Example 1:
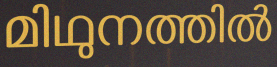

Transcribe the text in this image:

മിഥുനത്തിൽ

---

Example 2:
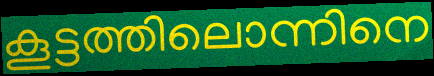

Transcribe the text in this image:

കൂട്ടത്തിലൊന്നിനെ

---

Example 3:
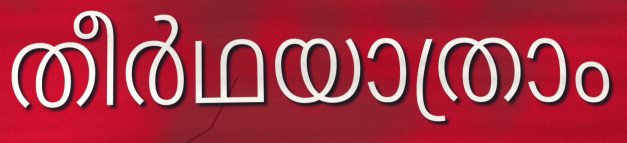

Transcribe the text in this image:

തീർഥയാത്രാം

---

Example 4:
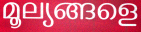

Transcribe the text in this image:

മൂല്യങ്ങളെ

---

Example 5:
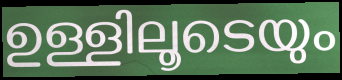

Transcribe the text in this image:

ഉള്ളിലൂടെയും